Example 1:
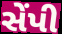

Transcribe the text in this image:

સેંપી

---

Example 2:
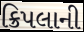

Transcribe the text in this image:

ક્રિપલાની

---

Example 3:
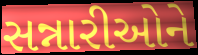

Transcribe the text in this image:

સન્નારીઓને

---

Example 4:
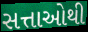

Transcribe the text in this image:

સત્તાઓથી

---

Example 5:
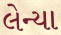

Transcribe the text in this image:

લેન્યા